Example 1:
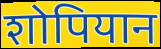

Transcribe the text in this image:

शोपियान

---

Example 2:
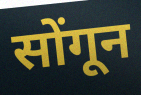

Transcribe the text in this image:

सोंगून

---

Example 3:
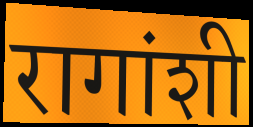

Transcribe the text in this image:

रागांशी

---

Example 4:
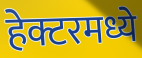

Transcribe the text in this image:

हेक्टरमध्ये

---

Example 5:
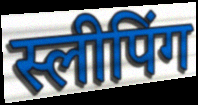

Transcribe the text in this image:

स्लीपिंग